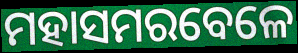
ମହାସମରବେଳେ